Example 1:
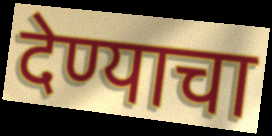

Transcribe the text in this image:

देण्याचा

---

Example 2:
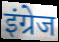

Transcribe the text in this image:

इंग्रेज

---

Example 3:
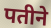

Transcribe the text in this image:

पतीने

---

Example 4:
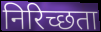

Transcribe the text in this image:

निरिच्छता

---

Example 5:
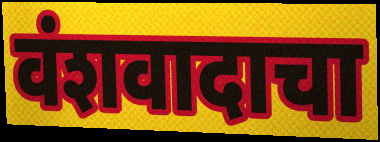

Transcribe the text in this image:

वंशवादाचा